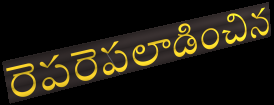
రెపరెపలాడించిన